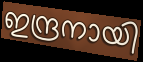
ഇന്ദ്രനായി